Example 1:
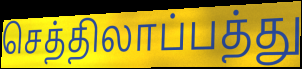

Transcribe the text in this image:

செத்திலாப்பத்து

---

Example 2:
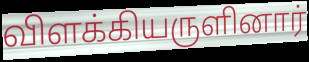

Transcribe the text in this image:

விளக்கியருளினார்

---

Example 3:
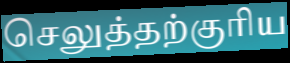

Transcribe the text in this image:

செலுத்தற்குரிய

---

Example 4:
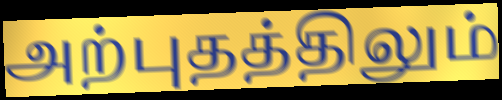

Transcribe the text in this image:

அற்புதத்திலும்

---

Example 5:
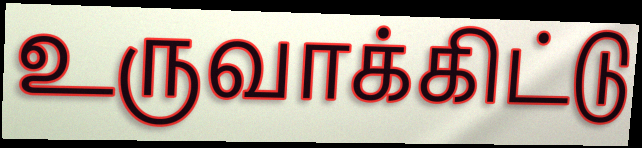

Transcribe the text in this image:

உருவாக்கிட்டு